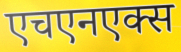
एचएनएक्स